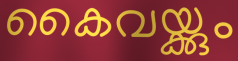
കൈവയ്ക്കും